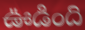
ఊడింది